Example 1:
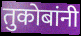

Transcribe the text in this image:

तुकोबांनी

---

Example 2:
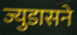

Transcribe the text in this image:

ज्युडासने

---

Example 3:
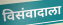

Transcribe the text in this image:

विसंवादाला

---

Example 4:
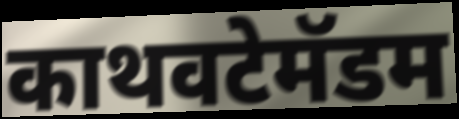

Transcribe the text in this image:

काथवटेमॅडम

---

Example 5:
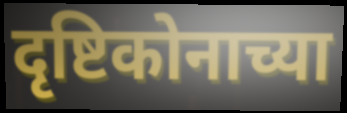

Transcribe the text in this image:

दृष्टिकोनाच्या